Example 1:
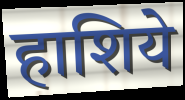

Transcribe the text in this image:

हाशिये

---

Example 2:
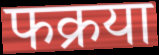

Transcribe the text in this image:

फक्रया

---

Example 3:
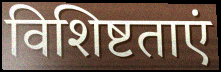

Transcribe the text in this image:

विशिष्टताएं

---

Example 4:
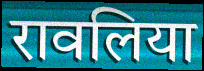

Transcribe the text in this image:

रावलिया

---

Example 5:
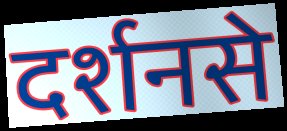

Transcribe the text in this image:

दर्शनसे